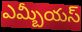
ఎమ్బీయస్